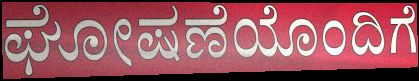
ಘೋಷಣೆಯೊಂದಿಗೆ